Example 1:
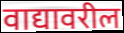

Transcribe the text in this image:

वाद्यावरील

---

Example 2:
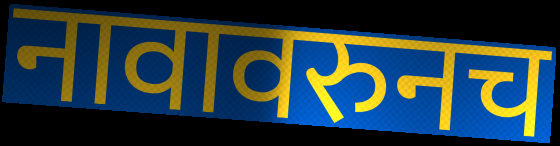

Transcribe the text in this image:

नावावरुनच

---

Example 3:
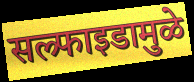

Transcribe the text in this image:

सल्फाइडामुळे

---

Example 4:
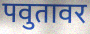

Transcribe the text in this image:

पवुतावर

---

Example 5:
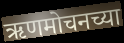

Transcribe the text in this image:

ऋणमोचनच्या